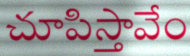
చూపిస్తావేం